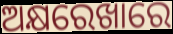
ଅକ୍ଷରେଖାରେ